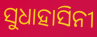
ସୁଧାହାସିନୀ